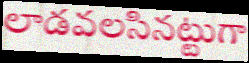
లాడవలసినట్టుగా